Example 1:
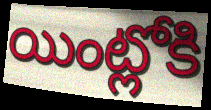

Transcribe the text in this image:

యింట్లోకి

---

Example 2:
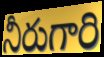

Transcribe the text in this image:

నీరుగారి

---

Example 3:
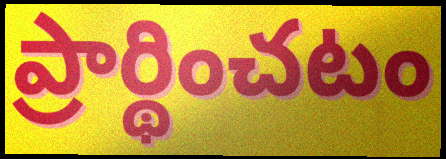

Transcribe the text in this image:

ప్రార్థించటం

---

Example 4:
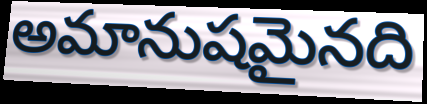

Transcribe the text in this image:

అమానుషమైనది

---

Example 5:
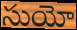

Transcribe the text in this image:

సుయో